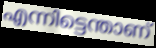
എന്നിട്ടെന്താണ്